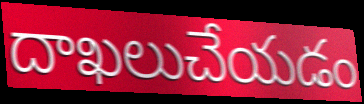
దాఖలుచేయడం